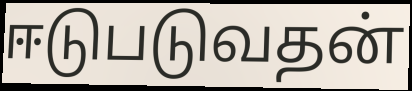
ஈடுபடுவதன்